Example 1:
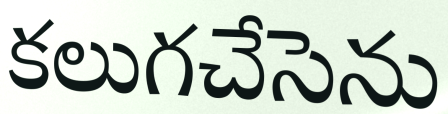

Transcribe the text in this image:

కలుగచేసెను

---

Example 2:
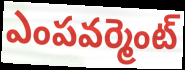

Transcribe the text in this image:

ఎంపవర్మెంట్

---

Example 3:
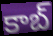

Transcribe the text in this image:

కాబ్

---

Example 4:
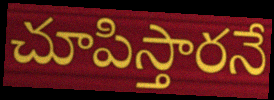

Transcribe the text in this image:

చూపిస్తారనే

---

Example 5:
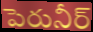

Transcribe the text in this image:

పెరునీర్